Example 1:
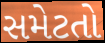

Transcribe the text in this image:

સમેટતો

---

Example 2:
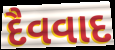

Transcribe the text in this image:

દૈવવાદ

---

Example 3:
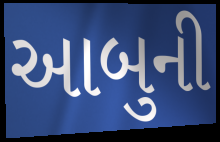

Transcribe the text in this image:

આબુની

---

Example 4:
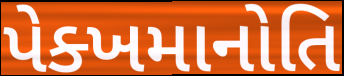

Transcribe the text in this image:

પેક્ખમાનોતિ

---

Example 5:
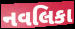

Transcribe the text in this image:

નવલિકા